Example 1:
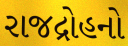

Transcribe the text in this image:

રાજદ્રોહનો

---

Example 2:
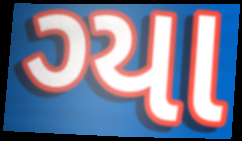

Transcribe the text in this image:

ગ્યા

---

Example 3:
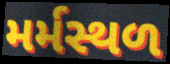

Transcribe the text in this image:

મર્મસ્થળ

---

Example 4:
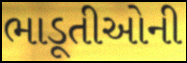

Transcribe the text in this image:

ભાડૂતીઓની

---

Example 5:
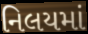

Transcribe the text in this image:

નિલયમાં